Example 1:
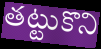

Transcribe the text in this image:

తట్టుకొని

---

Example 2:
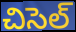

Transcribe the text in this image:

చిసెల్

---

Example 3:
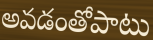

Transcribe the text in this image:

అవడంతోపాటు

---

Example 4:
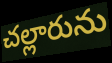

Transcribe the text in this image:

చల్లారును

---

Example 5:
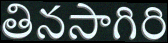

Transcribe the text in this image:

తినసాగిరి